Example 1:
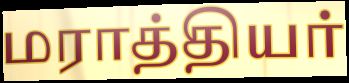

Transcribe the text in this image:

மராத்தியர்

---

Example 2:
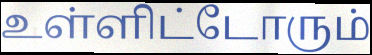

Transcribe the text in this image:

உள்ளிட்டோரும்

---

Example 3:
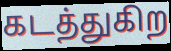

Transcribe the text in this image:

கடத்துகிற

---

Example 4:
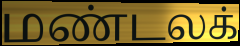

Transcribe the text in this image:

மண்டலக்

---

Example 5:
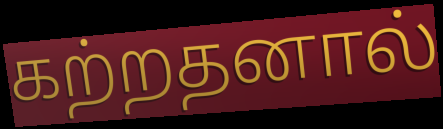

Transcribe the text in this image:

கற்றதனால்